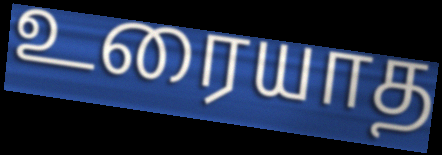
உரையாத